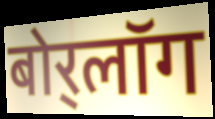
बोर्‌लॉग